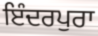
ਇੰਦਰਪੁਰਾ